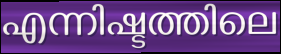
എന്നിഷ്ടത്തിലെ